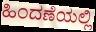
ಹಿಂದಣೆಯಲ್ಲಿ